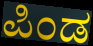
ಪಿಂಡ